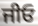
ਜੀਓ